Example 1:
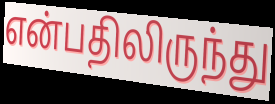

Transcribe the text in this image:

என்பதிலிருந்து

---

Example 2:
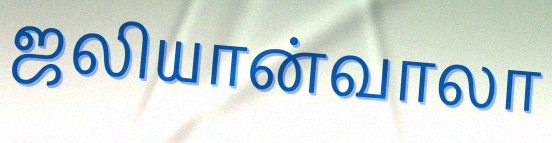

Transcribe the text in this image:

ஜலியான்வாலா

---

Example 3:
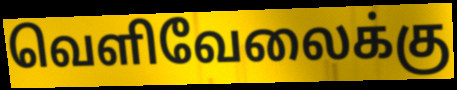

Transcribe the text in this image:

வெளிவேலைக்கு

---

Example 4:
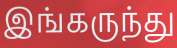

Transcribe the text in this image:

இங்கருந்து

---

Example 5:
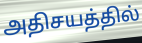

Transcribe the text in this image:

அதிசயத்தில்